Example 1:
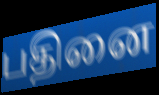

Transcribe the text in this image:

பதினை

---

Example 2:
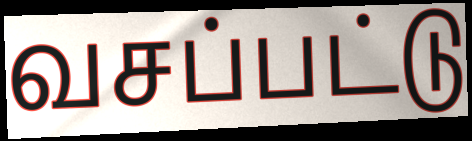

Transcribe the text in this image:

வசப்பட்டு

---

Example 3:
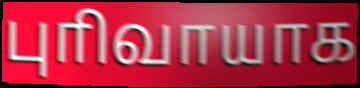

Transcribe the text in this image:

புரிவாயாக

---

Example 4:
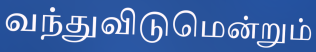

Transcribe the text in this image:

வந்துவிடுமென்றும்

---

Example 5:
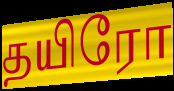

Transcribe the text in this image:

தயிரோ